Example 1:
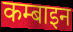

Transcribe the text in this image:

कम्बाइन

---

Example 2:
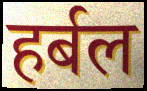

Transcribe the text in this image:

हर्बल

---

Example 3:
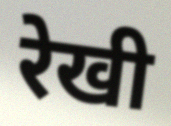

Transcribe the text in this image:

रेखी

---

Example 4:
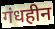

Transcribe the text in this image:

गंधहीन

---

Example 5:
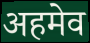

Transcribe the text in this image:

अहमेव